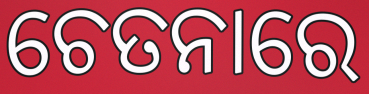
ଚେତନାରେ